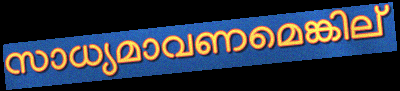
സാധ്യമാവണമെങ്കില്